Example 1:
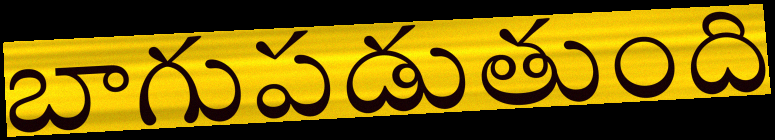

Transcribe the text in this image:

బాగుపడుతుంది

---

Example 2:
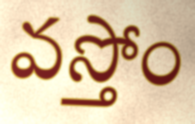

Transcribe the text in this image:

వస్తోం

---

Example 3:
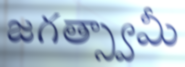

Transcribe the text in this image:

జగత్స్వామీ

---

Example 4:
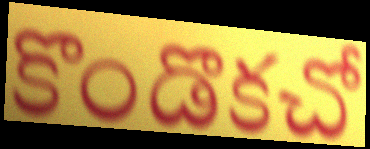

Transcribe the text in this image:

కొండొకచో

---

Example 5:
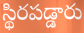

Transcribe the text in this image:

స్థిరపడ్డారు